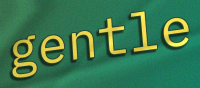
gentle